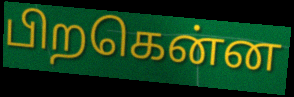
பிறகென்ன